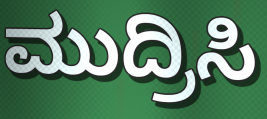
ಮುದ್ರಿಸಿ